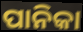
ପାନିକା